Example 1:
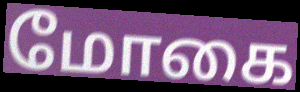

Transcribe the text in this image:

மோகை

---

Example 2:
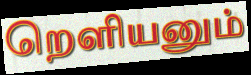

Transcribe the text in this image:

றெளியனும்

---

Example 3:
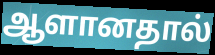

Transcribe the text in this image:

ஆளானதால்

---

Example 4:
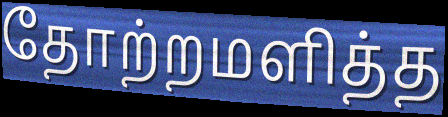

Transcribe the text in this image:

தோற்றமளித்த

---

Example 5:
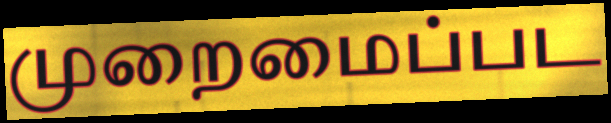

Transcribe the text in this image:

முறைமைப்பட